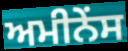
ਅਮੀਨੇਂਸ